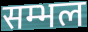
सम्भल